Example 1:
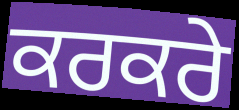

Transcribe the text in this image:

ਕਰਕਰੇ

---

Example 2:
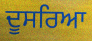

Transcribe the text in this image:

ਦੂਸਰਿਆ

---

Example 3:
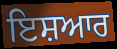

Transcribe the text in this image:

ਇਸ਼ਆਰ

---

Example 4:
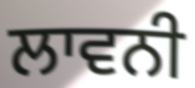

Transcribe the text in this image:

ਲਾਵਨੀ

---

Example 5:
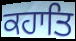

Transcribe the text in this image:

ਕਹਾਤਿ